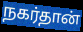
நகர்தான்